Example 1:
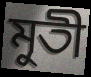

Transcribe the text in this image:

মুতী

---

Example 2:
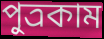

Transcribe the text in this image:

পুত্রকাম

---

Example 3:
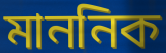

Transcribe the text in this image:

মাননিক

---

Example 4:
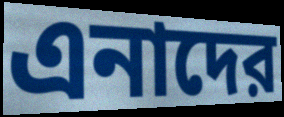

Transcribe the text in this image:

এনাদের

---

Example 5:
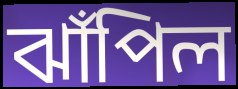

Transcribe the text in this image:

ঝাঁপিল